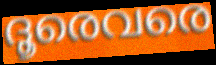
ദൂരെവരെ